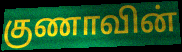
குணாவின்